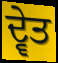
ਦ੍ਵੇਤ